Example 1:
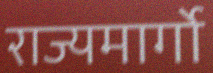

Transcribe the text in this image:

राज्यमार्गो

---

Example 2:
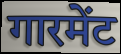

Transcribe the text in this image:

गारमेंट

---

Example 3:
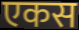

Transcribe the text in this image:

एकस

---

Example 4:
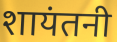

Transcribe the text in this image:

शायंतनी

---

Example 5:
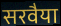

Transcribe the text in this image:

सरवैया